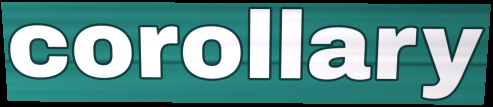
corollary